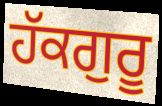
ਹੱਕਗੁਰੂ